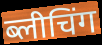
ब्लीचिंग